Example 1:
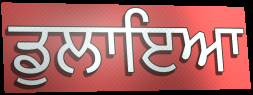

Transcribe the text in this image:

ਡੁਲਾਇਆ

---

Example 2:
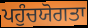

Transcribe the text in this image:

ਪਹੁੰਚਯੋਗਤਾ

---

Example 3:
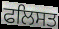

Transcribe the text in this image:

ਫਲਿਸਤ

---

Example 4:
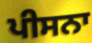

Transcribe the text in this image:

ਪੀਸਨਾ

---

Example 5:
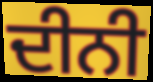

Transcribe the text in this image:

ਦੀਨੀ